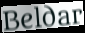
Beldar